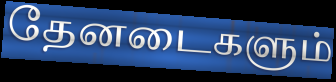
தேனடைகளும்